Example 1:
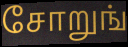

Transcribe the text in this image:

சோறுங்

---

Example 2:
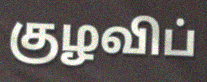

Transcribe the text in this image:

குழவிப்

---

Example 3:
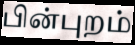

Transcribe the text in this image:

பின்புறம்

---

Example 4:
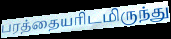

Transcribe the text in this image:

பரத்தையரிடமிருந்து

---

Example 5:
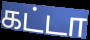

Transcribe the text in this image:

கட்டா